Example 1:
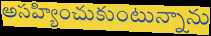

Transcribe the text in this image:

అసహ్యించుకుంటున్నాను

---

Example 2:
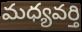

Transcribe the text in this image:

మధ్యవర్తి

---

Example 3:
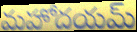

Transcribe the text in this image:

మహోదయమ్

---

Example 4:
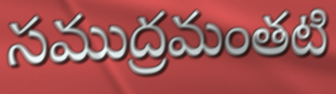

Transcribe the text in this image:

సముద్రమంతటి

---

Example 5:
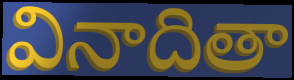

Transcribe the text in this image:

వినాదితా